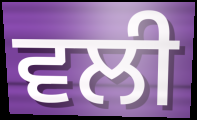
ਵਲੀ